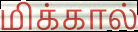
மிக்கால்